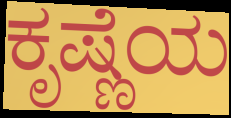
ಕೃಷ್ಣೆಯ